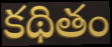
కథితం